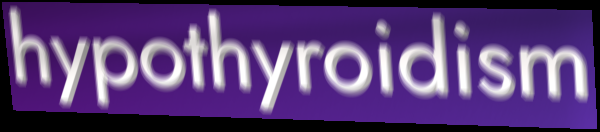
hypothyroidism